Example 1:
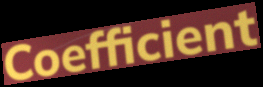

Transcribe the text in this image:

Coefficient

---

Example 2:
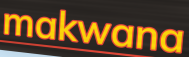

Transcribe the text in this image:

makwana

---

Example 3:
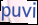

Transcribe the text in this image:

puvi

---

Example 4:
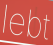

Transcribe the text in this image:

lebt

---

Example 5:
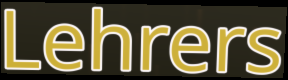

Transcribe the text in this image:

Lehrers